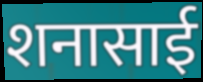
शनासाई